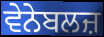
ਵੇਨੇਬਲਜ਼